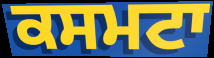
ਕਸਮਟਾ